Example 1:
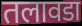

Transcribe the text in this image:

तलावडा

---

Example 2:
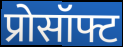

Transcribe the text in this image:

प्रोसॉफ्ट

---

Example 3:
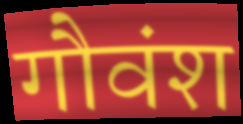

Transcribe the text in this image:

गौवंश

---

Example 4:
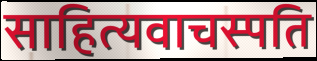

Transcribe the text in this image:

साहित्यवाचस्पति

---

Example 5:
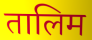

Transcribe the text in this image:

तालिम